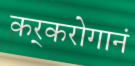
कर्करोगानं